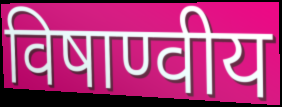
विषाण्वीय